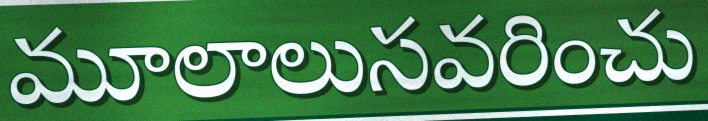
మూలాలుసవరించు